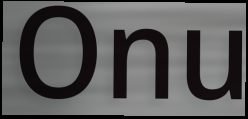
Onu